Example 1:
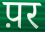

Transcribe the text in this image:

प़र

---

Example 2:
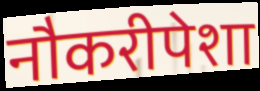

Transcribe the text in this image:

नौकरीपेशा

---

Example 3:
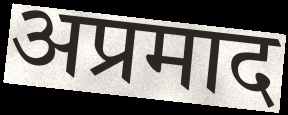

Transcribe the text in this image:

अप्रमाद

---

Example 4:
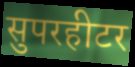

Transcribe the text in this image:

सुपरहीटर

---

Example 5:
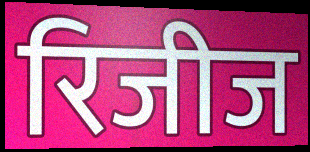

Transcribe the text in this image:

रिजीज